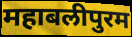
महाबलीपुरम